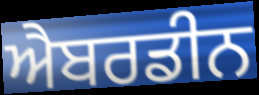
ਐਬਰਡੀਨ